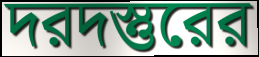
দরদস্তুরের